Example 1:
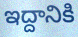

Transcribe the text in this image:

ఇద్దానికి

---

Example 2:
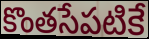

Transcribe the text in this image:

కొంతసేపటికే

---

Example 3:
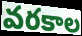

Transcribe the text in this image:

వరకాల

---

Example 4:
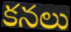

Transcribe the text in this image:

కనలు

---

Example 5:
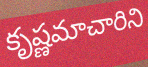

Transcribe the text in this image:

కృష్ణమాచారిని